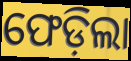
ଫେଡ଼ିଲା